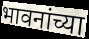
भावनांच्या